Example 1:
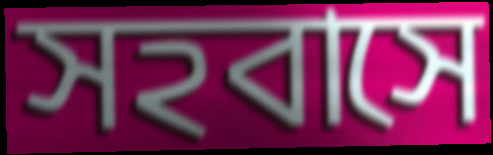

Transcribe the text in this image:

সহবাসে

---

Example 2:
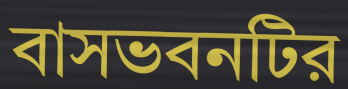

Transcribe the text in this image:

বাসভবনটির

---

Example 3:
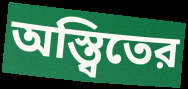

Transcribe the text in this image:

অস্ত্বিতের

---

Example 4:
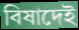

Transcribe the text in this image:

বিষাদেই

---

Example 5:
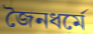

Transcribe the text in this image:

জৈনধর্মে